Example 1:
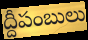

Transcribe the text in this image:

ద్దీపంబులు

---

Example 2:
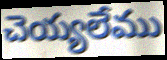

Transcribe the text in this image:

చెయ్యలేము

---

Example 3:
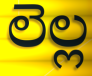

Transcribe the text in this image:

లెల్ల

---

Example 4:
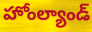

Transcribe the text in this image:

హోంల్యాండ్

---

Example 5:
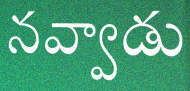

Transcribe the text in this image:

నవ్వాడు